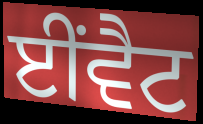
ਈਂਵੈਟ